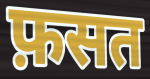
फ़सत